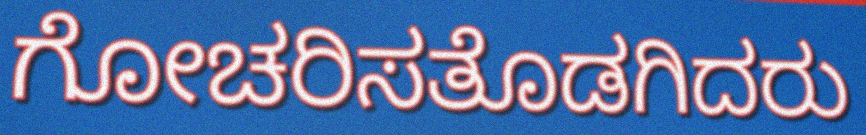
ಗೋಚರಿಸತೊಡಗಿದರು